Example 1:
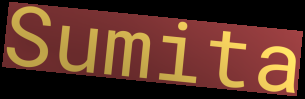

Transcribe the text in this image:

Sumita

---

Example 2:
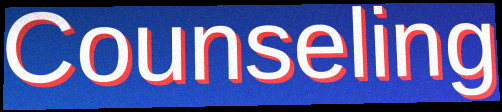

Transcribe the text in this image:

Counseling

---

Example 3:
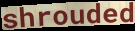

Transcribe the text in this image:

shrouded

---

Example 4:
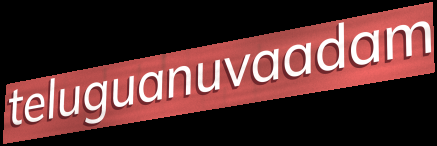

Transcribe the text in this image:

teluguanuvaadam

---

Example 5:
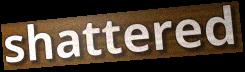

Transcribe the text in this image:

shattered